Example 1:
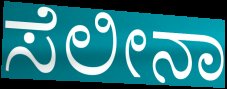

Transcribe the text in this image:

ಸೆಲೀನಾ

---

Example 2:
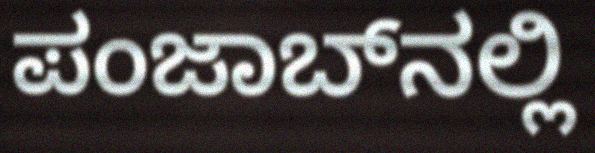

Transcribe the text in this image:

ಪಂಜಾಬ್‌ನಲ್ಲಿ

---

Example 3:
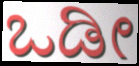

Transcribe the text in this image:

ಒಡೀ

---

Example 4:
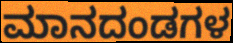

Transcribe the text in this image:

ಮಾನದಂಡಗಳ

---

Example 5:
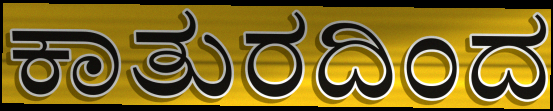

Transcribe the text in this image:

ಕಾತುರದಿಂದ